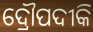
ଦ୍ରୌପଦୀକି